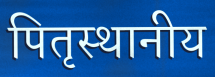
पितृस्थानीय